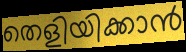
തെളിയിക്കാൻ